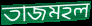
তাজমহল